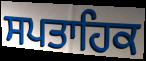
ਸਪਤਾਹਿਕ